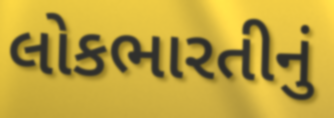
લોકભારતીનું